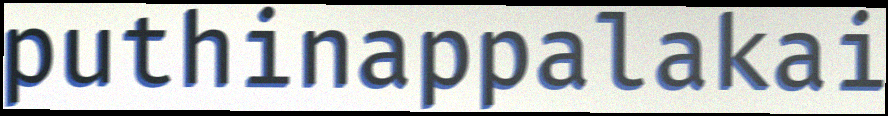
puthinappalakai